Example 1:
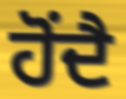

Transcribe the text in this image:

ਹੋਂਦੈ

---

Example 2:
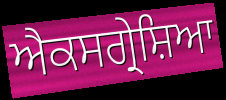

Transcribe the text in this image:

ਐਕਸਗ੍ਰੇਸ਼ਿਆ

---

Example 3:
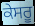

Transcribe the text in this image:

ਕੇਸਰੂ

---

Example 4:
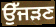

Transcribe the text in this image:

ਉੱਜੜਣ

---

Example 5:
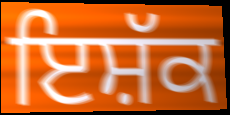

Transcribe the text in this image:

ਇਸ਼ੱਕ